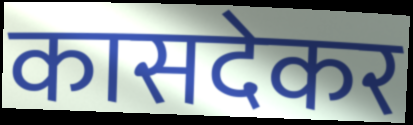
कासदेकर